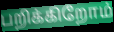
பறிக்கிறோம்